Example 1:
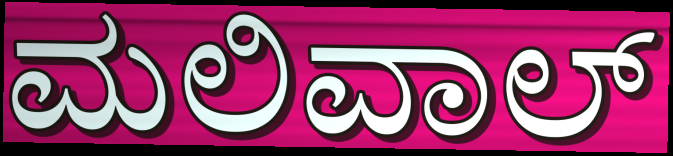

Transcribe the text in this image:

ಮಲಿವಾಲ್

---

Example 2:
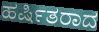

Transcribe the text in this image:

ಹರ್ಷಿತರಾದ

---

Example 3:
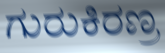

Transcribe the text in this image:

ಗುರುಕಿರಣ್ರ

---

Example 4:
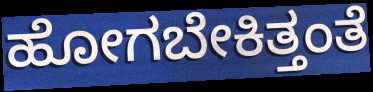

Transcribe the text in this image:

ಹೋಗಬೇಕಿತ್ತಂತೆ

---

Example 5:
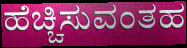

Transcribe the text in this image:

ಹೆಚ್ಚಿಸುವಂತಹ